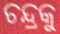
ଚନ୍ଦ୍ରକୁ